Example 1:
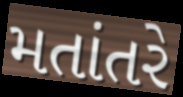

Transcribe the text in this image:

મતાંતરે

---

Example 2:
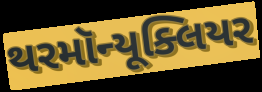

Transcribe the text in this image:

થરમૉન્યૂક્લિયર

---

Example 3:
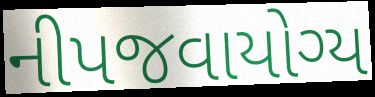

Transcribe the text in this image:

નીપજવાયોગ્ય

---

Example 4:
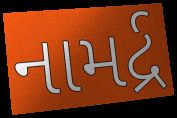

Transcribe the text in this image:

નામર્દ્ર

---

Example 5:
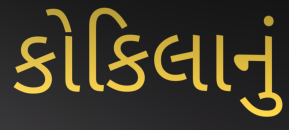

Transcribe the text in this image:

કોકિલાનું